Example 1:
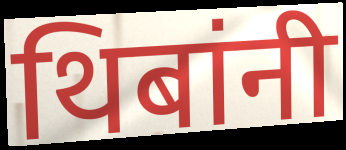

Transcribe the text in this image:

थिबांनी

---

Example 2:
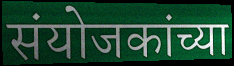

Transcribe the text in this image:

संयोजकांच्या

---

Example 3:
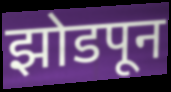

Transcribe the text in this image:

झोडपून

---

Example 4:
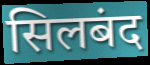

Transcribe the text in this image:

सिलबंद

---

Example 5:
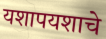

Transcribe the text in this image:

यशापयशाचे